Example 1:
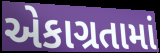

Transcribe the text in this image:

એકાગ્રતામાં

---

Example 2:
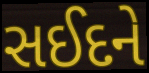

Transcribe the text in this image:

સઈદને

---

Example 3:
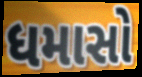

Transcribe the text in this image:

ધમાસો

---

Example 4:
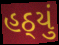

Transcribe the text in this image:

હઠ્યું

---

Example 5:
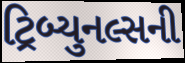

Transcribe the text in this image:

ટ્રિબ્યુનલ્સની